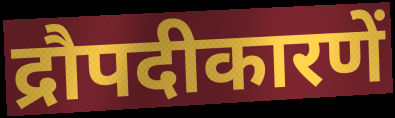
द्रौपदीकारणें